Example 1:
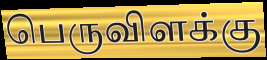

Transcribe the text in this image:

பெருவிளக்கு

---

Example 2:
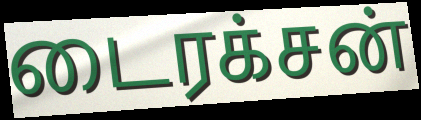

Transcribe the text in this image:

டைரக்சன்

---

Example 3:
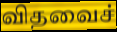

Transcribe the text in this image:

விதவைச்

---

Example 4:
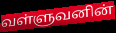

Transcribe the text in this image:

வள்ளுவனின்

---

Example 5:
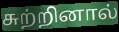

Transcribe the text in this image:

சுற்றினால்